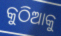
କୁଠିଆକୁ